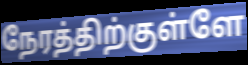
நேரத்திற்குள்ளே